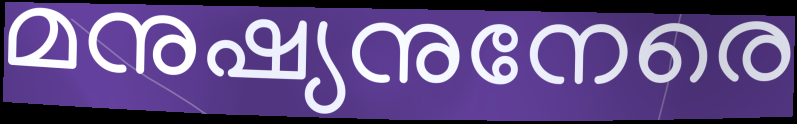
മനുഷ്യനുനേരെ